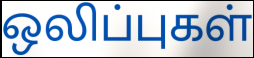
ஒலிப்புகள்